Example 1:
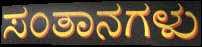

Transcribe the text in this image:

ಸಂತಾನಗಳು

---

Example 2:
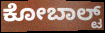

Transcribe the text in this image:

ಕೋಬಾಲ್ಟ್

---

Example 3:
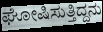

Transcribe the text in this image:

ಘೋಷಿಸುತ್ತಿದ್ದನು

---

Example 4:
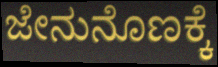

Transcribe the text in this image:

ಜೇನುನೊಣಕ್ಕೆ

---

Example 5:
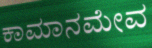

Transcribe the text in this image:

ಕಾಮಾನಮೇವ